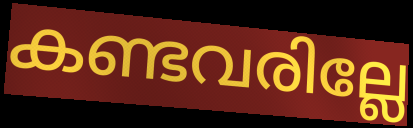
കണ്ടവരില്ലേ